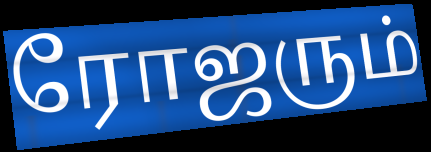
ரோஜரும்